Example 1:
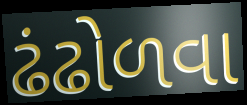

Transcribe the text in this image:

ઢંઢોળવા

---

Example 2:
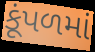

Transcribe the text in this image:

કૂંપળમાં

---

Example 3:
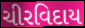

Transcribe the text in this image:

ચીરવિદાય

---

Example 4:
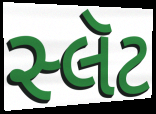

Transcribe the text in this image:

સ્લૅટ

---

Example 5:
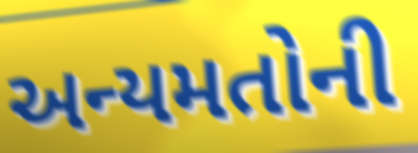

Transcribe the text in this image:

અન્યમતોની